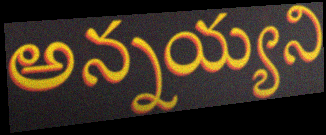
అన్నయ్యని